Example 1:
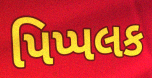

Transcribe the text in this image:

પિપ્પલક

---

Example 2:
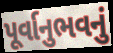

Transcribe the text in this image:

પૂર્વાનુભવનું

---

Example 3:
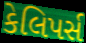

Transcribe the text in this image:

કેલિપર્સ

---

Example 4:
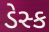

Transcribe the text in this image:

ડેસ્ક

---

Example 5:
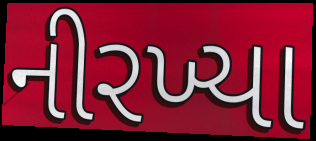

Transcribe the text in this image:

નીરખ્યા